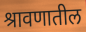
श्रावणातील